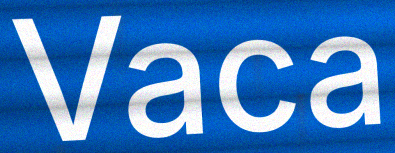
Vaca